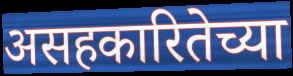
असहकारितेच्या